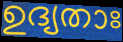
ഉദ്യതാഃ